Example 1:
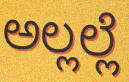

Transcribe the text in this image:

ಅಲ್ಲಲ್ಲೆ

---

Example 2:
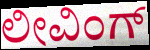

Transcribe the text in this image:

ಲೀವಿಂಗ್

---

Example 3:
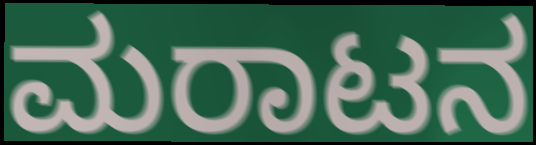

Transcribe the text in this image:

ಮರಾಟನ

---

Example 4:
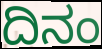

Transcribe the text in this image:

ದಿನಂ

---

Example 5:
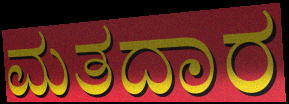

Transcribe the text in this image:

ಮತದಾರ